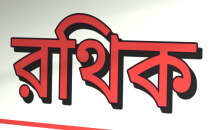
রথিক